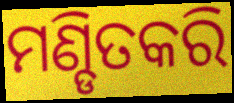
ମଣ୍ଡିତକରି